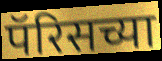
पॅरिसच्या